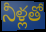
నీళ్లతో